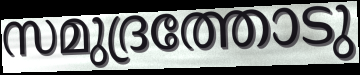
സമുദ്രത്തോടു